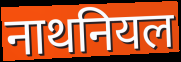
नाथनियल